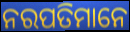
ନରପତିମାନେ